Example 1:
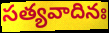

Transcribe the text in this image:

సత్యవాదినః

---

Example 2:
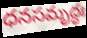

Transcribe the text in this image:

ధనసమృద్ధః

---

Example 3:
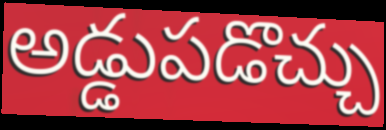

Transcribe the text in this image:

అడ్డుపడొచ్చు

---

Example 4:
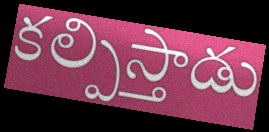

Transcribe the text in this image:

కల్పిస్తాడు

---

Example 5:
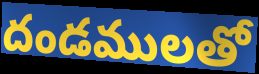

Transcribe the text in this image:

దండములతో